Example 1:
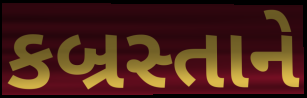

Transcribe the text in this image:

કબ્રસ્તાને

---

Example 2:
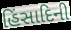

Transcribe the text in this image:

હિંસાદિની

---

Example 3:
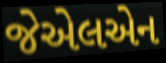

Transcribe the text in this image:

જેએલએન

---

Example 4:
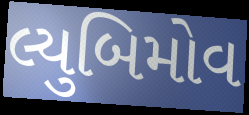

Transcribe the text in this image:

લ્યુબિમોવ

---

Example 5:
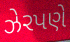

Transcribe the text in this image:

ઝેરપણે